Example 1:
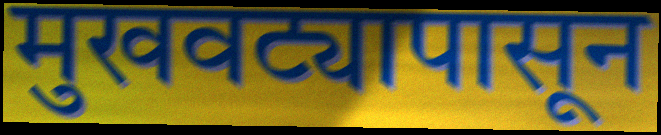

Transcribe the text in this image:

मुखवट्यापासून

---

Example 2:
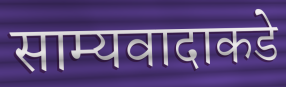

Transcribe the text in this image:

साम्यवादाकडे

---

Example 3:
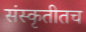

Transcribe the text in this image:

संस्कृतीतच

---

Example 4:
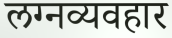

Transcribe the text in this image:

लग्नव्यवहार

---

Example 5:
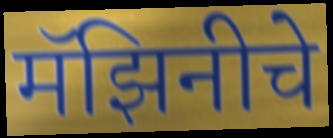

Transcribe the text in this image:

मॅझिनीचे